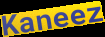
Kaneez